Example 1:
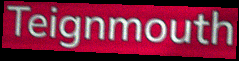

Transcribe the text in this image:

Teignmouth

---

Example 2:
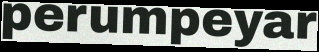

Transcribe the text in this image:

perumpeyar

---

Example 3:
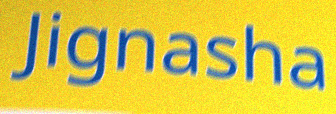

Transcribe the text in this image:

Jignasha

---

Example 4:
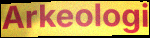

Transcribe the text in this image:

Arkeologi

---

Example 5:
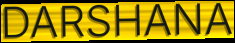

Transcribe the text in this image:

DARSHANA